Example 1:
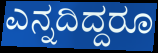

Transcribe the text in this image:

ಎನ್ನದಿದ್ದರೂ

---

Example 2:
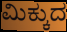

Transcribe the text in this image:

ಮಿಕ್ಕುದ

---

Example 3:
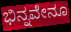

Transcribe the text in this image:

ಭಿನ್ನವೇನೂ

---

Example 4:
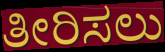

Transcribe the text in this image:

ತೀರಿಸಲು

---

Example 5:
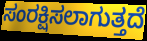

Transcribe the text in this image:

ಸಂರಕ್ಷಿಸಲಾಗುತ್ತದೆ